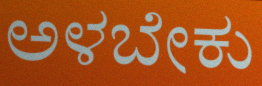
ಅಳಬೇಕು